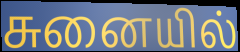
சுனையில்